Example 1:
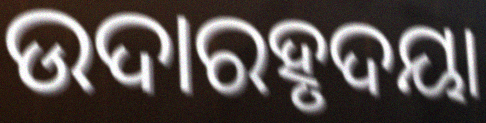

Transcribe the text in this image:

ଉଦାରହୃଦୟା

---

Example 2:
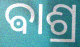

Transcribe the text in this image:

ଵାଶ୍ର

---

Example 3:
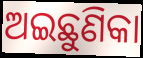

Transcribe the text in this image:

ଅଇଛୁଣିକା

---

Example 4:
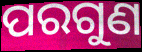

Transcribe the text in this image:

ପରଗୁଣ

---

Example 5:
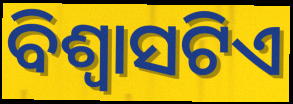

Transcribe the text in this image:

ବିଶ୍ଵାସଟିଏ